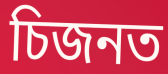
চিজনত